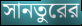
সানতুরের